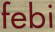
febi